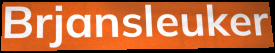
Brjansleuker